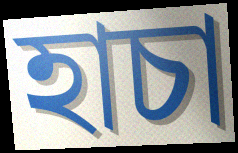
হাচা